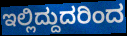
ಇಲ್ಲಿದ್ದುದರಿಂದ